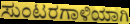
ಸುಂಟರಗಾಳಿಯಾಗಿ